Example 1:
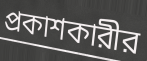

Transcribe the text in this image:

প্রকাশকারীর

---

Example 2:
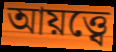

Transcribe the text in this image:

আয়ত্ত্বে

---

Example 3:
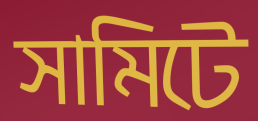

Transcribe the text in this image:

সামিটে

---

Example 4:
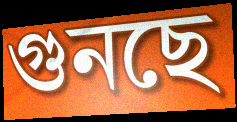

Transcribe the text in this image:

গুনছে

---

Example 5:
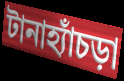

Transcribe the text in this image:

টানাহ্যাঁচড়া